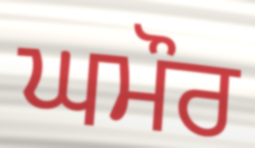
ਘਮੌਰ